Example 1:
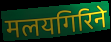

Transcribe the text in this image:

मलयगिरिने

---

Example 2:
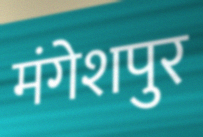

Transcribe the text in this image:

मंगेशपुर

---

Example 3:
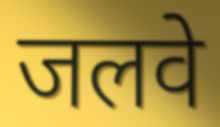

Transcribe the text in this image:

जलवे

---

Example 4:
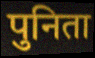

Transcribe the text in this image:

पुनिता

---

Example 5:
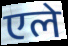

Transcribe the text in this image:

एले